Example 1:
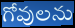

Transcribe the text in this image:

గోవులను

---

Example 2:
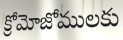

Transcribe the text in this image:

క్రోమోజోములకు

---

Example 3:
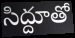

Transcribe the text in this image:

సిద్దూతో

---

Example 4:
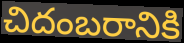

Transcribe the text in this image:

చిదంబరానికి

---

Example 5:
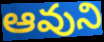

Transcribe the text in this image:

ఆవుని